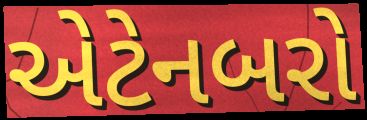
એટેનબરો